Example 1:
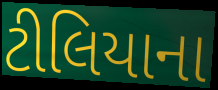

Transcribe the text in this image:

ટીલિયાના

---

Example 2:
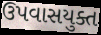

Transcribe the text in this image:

ઉપવાસયુક્ત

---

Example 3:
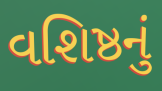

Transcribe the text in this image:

વશિષ્ઠનું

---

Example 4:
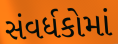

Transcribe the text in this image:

સંવર્ધકોમાં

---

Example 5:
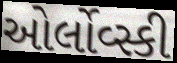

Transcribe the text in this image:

ઓર્લોવ્સ્કી